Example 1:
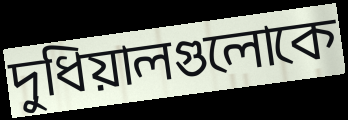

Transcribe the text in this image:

দুধিয়ালগুলোকে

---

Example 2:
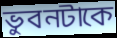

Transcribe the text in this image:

ভুবনটাকে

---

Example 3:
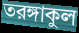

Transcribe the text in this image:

তরঙ্গাকুল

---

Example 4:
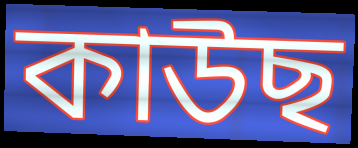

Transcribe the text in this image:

কাউছ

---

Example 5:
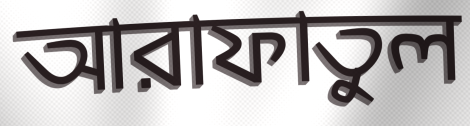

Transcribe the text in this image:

আরাফাতুল